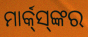
ମାର୍କ୍‌ସ୍‌ଙ୍କର